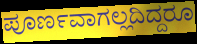
ಪೂರ್ಣವಾಗಲ್ಲದಿದ್ದರೂ